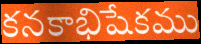
కనకాభిషేకము